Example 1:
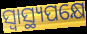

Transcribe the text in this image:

ସ୍ଵାସ୍ଥ୍ୟପକ୍ଷେ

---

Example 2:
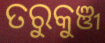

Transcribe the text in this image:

ତରୁକୁଞ୍ଜ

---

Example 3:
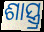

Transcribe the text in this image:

ଶାସ୍ତ୍ର୍ର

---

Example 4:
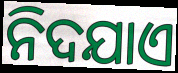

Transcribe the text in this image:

ନିଦଯାଏ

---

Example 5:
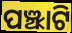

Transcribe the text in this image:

ପଞ୍ଝାଟି